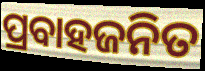
ପ୍ରବାହଜନିତ